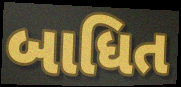
બાધિત